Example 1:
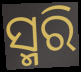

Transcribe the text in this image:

ସ୍ମରି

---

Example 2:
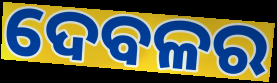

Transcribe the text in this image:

ଦେବଳର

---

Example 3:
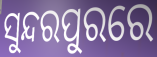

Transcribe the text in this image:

ସୁନ୍ଦରପୁରରେ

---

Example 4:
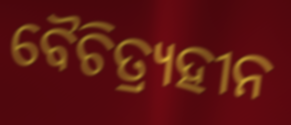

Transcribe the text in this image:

ବୈଚିତ୍ର୍ୟହୀନ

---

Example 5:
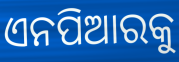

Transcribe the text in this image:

ଏନପିଆରକୁ